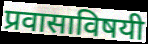
प्रवासाविषयी